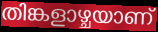
തിങ്കളാഴ്ചയാണ്